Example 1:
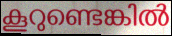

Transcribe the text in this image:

കൂറുണ്ടെങ്കിൽ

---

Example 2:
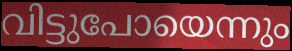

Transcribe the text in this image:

വിട്ടുപോയെന്നും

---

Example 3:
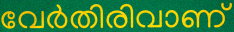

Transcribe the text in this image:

വേർതിരിവാണ്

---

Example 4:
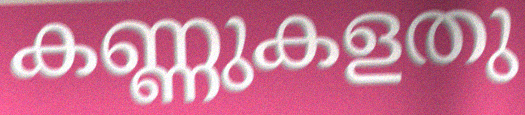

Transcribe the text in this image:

കണ്ണുകളതു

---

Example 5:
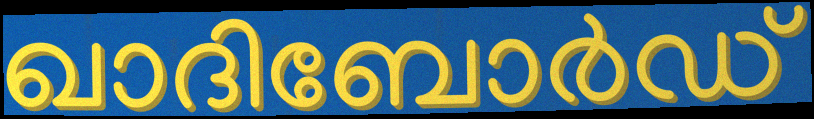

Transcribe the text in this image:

ഖാദിബോർഡ്